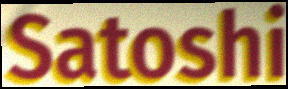
Satoshi